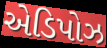
એડિપોઝ